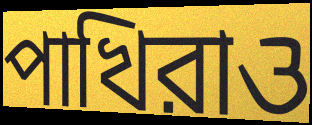
পাখিরাও